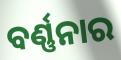
ବର୍ଣ୍ଣନାର